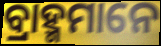
ବ୍ରାହ୍ମମାନେ